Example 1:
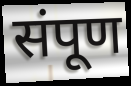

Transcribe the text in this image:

संपूण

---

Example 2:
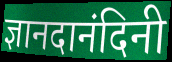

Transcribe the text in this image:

ज्ञानदानंदिनी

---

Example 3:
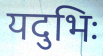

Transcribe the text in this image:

यदुभिः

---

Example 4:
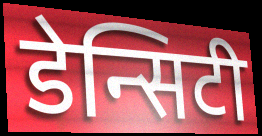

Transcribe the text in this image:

डेन्सिटी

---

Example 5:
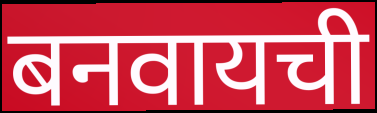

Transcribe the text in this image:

बनवायची